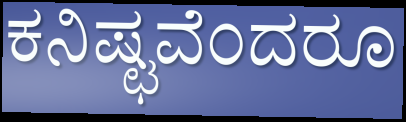
ಕನಿಷ್ಟವೆಂದರೂ